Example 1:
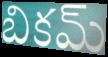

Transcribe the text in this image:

బికమ్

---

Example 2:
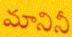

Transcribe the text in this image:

మానినీ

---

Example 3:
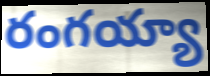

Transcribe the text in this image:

రంగయ్యా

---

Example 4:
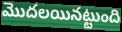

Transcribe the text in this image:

మొదలయినట్టుంది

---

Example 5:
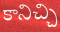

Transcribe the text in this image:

కానిచ్చి